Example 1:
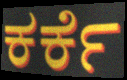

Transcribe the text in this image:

ಕರ್ಕೆ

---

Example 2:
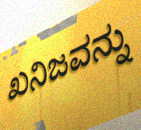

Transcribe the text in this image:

ಖನಿಜವನ್ನು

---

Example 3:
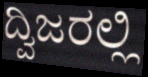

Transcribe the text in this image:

ದ್ವಿಜರಲ್ಲಿ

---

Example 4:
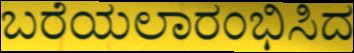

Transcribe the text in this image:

ಬರೆಯಲಾರಂಭಿಸಿದ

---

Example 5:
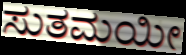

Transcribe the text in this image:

ಸುತಮಯೀ